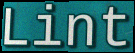
Lint